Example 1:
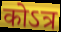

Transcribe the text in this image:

कोऽत्र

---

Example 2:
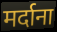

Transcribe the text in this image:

मर्दाना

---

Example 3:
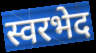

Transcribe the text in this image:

स्वरभेद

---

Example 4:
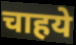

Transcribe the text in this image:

चाहये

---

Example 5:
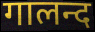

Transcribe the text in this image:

गालन्द